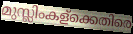
മുസ്ലിംകള്ക്കെതിരെ